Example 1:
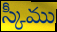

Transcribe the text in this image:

స్కీము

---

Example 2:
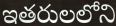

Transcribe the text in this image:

ఇతరులలోని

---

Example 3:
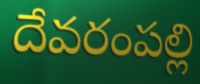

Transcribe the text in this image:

దేవరంపల్లి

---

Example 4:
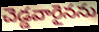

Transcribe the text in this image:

చెడ్డవారైనను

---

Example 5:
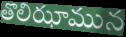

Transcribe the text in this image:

తొలిఝామున